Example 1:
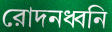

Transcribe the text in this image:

রোদনধ্বনি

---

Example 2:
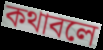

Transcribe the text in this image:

কথাবলে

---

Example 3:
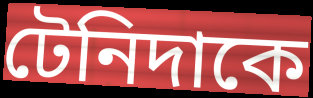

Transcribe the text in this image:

টেনিদাকে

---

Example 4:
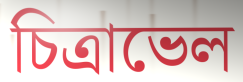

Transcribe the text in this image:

চিত্রাভেল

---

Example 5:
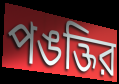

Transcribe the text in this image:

পঙক্তির